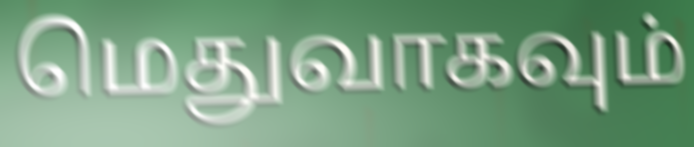
மெதுவாகவும்